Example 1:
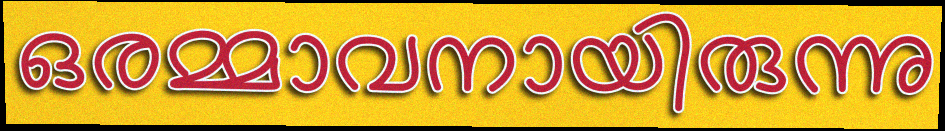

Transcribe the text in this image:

ഒരമ്മാവനായിരുന്നു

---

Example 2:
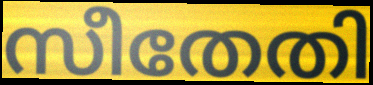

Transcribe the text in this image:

സീതേതി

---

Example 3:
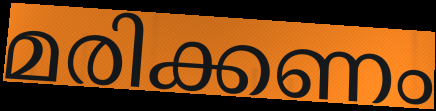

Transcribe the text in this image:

മരിക്കണം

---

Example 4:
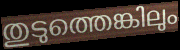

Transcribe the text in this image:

തുടുത്തെങ്കിലും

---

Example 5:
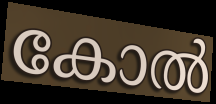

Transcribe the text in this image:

കോൽ